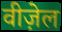
वीज़ेल